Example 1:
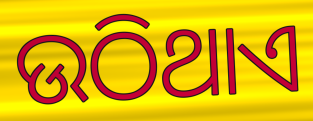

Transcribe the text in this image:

ଉଠିଥାଏ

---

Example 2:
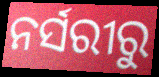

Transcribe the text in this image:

ନର୍ସରୀରୁ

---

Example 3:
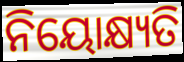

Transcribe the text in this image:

ନିୟୋକ୍ଷ୍ୟତି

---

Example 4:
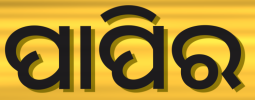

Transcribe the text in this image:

ପାପିର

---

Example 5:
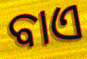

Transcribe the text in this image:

ବାଏ